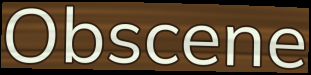
Obscene